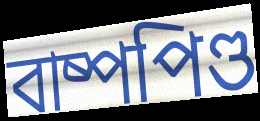
বাষ্পপিণ্ড